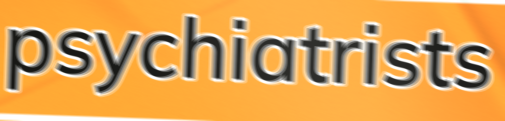
psychiatrists